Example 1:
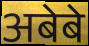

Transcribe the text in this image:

अबेबे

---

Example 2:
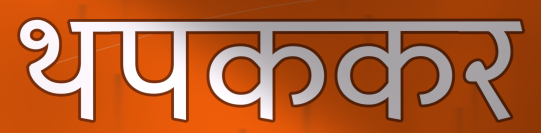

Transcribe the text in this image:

थपककर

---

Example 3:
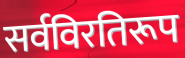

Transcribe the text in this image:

सर्वविरतिरूप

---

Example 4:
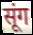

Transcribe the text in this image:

सूंग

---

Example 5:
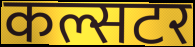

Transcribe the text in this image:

कल्सटर